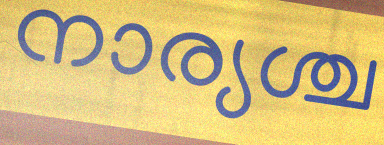
നാര്യശ്ച